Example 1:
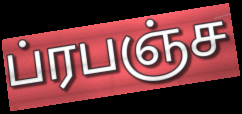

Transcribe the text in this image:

ப்ரபஞ்ச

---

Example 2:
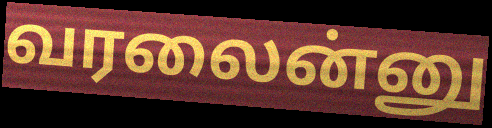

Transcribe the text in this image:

வரலைன்னு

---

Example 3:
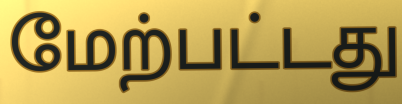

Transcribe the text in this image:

மேற்பட்டது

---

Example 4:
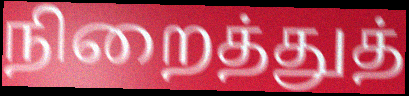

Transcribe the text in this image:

நிறைத்துத்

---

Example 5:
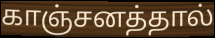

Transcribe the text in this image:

காஞ்சனத்தால்